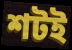
শটই